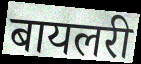
बायलरी